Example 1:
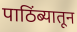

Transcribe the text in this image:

पाठिंब्यातून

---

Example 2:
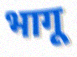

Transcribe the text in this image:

भागू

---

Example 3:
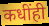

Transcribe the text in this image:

कधींही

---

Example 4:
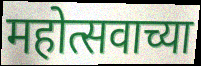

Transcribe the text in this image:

महोत्सवाच्या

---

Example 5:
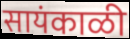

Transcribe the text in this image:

सायंकाळी